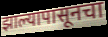
झाल्यापासूनचा